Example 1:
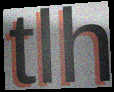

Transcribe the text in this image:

tlh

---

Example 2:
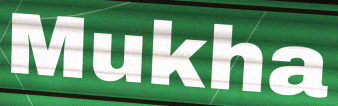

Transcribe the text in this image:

Mukha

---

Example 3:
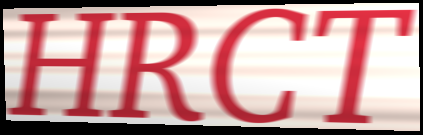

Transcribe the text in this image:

HRCT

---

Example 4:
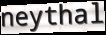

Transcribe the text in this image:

neythal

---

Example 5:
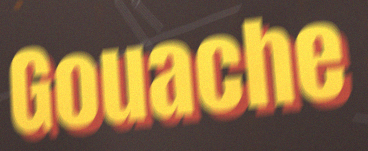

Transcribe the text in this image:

Gouache